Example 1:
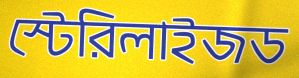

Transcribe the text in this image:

স্টেরিলাইজড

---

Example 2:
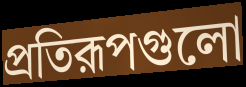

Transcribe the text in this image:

প্রতিরূপগুলো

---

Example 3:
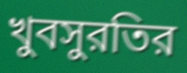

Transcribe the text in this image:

খুবসুরতির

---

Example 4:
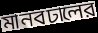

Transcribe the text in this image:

মানবঢালের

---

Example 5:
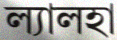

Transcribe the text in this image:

ল্যালহা